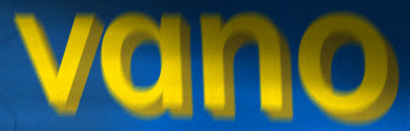
vano